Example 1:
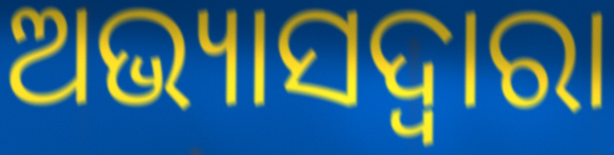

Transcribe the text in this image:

ଅଭ୍ୟାସଦ୍ୱାରା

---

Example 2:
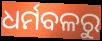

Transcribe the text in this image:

ଧର୍ମବଳରୁ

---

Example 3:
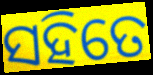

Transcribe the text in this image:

ସହିତେ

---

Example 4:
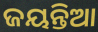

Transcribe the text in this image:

ଜୟନ୍ତିଆ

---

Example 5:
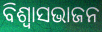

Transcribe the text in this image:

ବିଶ୍ୱାସଭାଜନ